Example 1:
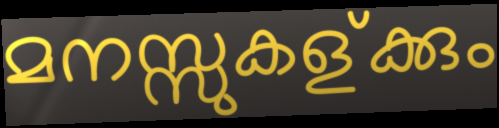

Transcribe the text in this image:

മനസ്സുകള്ക്കും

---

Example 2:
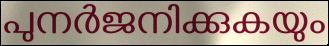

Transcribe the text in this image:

പുനർജനിക്കുകയും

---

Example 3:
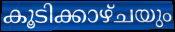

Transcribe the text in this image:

കൂടിക്കാഴ്ചയും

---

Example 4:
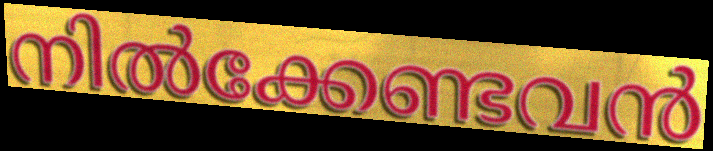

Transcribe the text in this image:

നിൽക്കേണ്ടവൻ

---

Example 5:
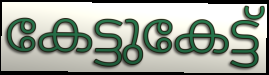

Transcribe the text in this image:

കേട്ടുകേട്ട്